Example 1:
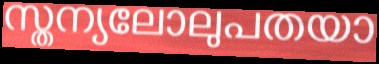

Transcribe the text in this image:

സ്തന്യലോലുപതയാ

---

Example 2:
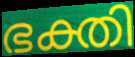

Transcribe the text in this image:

ഭക്തി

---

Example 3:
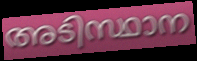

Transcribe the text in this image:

അടിസ്ഥാന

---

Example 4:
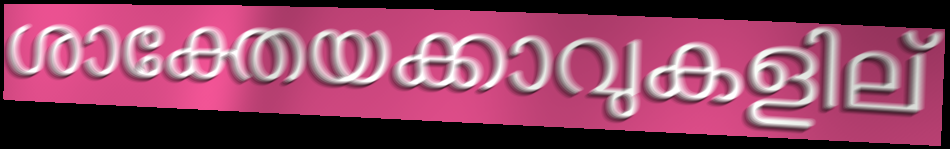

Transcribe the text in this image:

ശാക്തേയക്കാവുകളില്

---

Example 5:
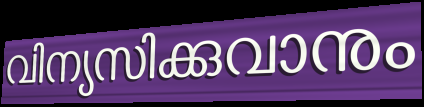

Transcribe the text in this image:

വിന്യസിക്കുവാനും